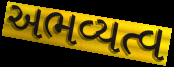
અભવ્યત્વ